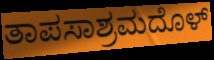
ತಾಪಸಾಶ್ರಮದೊಳ್